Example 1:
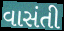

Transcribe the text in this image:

વાસંતી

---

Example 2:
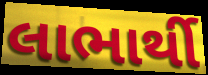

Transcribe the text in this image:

લાભાર્થી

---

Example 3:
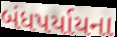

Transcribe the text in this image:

બંધપર્યાયના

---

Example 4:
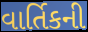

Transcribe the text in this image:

વાર્તિકની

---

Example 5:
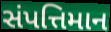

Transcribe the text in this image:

સંપત્તિમાન